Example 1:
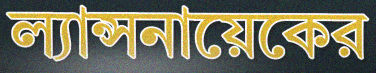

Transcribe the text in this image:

ল্যান্সনায়েকের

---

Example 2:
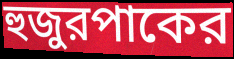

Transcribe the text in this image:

হুজুরপাকের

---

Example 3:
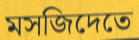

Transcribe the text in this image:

মসজিদেতে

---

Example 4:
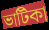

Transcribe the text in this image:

ভাটিকা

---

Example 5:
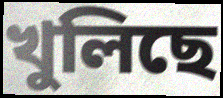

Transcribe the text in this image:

খুলিছে